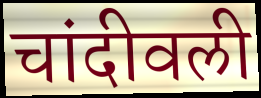
चांदीवली